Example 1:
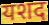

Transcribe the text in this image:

यशद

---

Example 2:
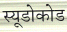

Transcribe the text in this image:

स्यूडोकोड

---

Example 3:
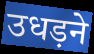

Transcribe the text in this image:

उधड़ने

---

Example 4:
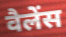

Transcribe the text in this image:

वैलेंस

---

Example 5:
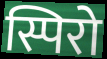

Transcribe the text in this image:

स्पिरो